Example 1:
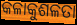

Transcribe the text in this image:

କଳାକୁଶଳତା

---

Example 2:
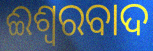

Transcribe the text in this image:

ଈଶ୍ୱରବାଦ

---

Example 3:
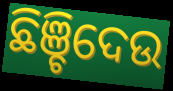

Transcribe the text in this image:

ଛିଞ୍ଚିଦେଉ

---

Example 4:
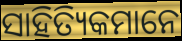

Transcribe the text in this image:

ସାହିତ୍ୟିକମାନେ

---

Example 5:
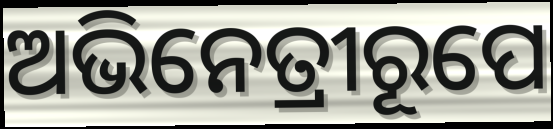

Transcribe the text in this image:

ଅଭିନେତ୍ରୀରୂପେ